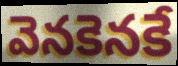
వెనకెనకే